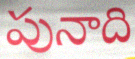
పునాది